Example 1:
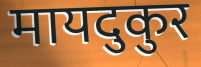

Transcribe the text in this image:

मायदुकुर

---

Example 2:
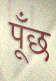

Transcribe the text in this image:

पूँछ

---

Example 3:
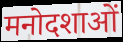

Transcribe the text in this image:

मनोदशाओं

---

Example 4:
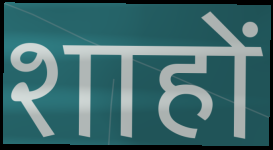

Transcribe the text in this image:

शाहों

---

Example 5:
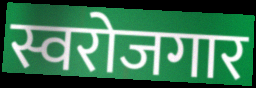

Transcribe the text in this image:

स्‍वरोजगार